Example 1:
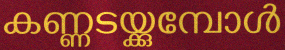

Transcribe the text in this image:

കണ്ണടയ്ക്കുമ്പോൾ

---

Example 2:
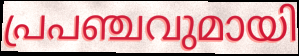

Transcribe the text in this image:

പ്രപഞ്ചവുമായി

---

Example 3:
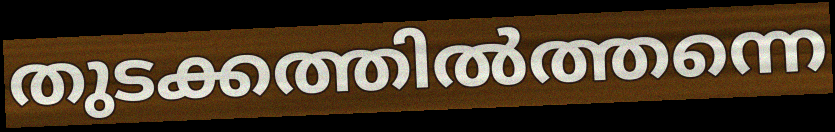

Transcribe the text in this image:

തുടക്കത്തിൽത്തന്നെ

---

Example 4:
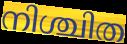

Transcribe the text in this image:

നിശ്ചിത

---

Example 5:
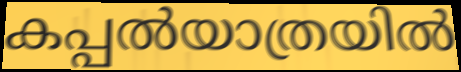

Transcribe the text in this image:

കപ്പൽയാത്രയിൽ